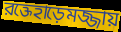
রক্তেহাড়েমজ্জায়